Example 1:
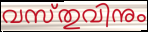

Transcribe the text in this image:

വസ്‌തുവിനും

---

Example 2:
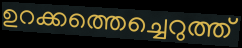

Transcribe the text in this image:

ഉറക്കത്തെച്ചെറുത്ത്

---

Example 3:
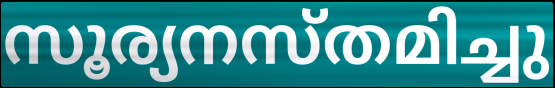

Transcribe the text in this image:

സൂര്യനസ്തമിച്ചു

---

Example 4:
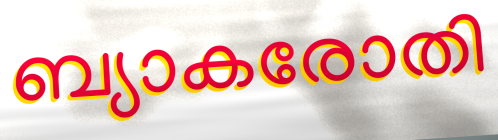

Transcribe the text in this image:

ബ്യാകരോതി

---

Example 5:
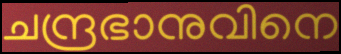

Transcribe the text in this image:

ചന്ദ്രഭാനുവിനെ